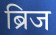
ब्रिज